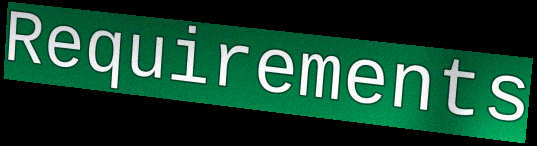
Requirements